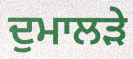
ਦੁਮਾਲੜੇ